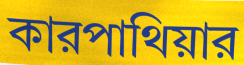
কারপাথিয়ার